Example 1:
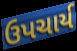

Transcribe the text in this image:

ઉપચાર્ય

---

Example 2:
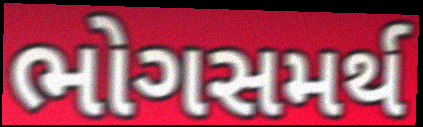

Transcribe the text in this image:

ભોગસમર્થ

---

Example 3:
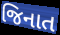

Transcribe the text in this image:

જિનાત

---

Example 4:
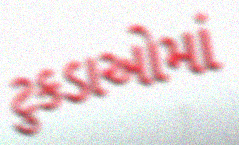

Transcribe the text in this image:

ટુકડાઓમાં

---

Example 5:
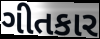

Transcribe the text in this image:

ગીતકાર